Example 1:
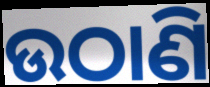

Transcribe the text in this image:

ଉଠାଣି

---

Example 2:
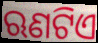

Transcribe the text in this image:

ଋଣଟିଏ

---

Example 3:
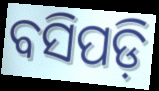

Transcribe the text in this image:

ବସିପଡ଼ି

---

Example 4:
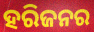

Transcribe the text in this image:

ହରିଜନର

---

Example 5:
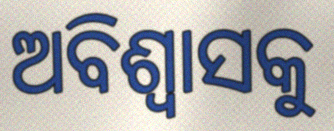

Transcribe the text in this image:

ଅବିଶ୍ୱାସକୁ